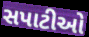
સપાટીઓ